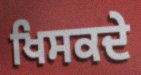
ਖਿਸਕਦੇ